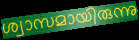
ശ്വാസമായിരുന്നു